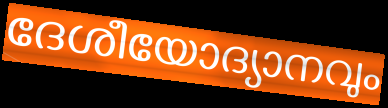
ദേശീയോദ്യാനവും